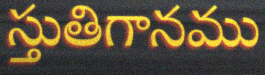
స్తుతిగానము